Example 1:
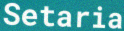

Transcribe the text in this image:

Setaria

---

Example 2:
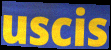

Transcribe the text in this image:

uscis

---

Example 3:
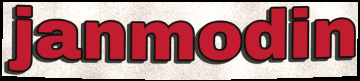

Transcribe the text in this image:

janmodin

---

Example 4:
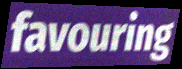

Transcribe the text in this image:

favouring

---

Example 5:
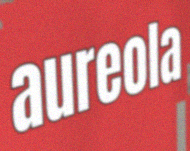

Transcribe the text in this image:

aureola